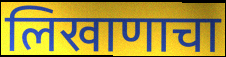
लिखाणाचा